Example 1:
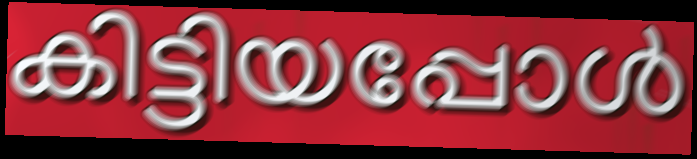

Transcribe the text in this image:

കിട്ടിയപ്പോൾ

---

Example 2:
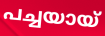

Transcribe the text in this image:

പച്ചയായ്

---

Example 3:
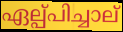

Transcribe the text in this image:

ഏല്പ്പിച്ചാല്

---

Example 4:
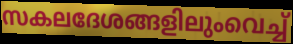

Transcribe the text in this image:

സകലദേശങ്ങളിലുംവെച്ച്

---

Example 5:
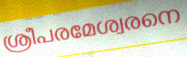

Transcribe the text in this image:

ശ്രീപരമേശ്വരനെ